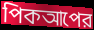
পিকআপের